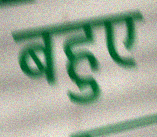
बहुए